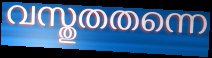
വസ്തുതതന്നെ